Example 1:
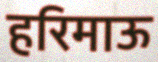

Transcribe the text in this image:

हरिमाऊ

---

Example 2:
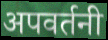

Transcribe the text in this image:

अपवर्तनी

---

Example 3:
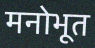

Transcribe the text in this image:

मनोभूत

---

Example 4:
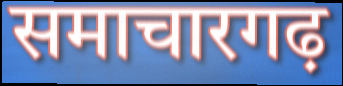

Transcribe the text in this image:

समाचारगढ़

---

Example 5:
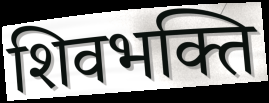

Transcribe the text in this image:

शिवभक्ति